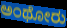
ಅಂಥೋರು